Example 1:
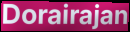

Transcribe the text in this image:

Dorairajan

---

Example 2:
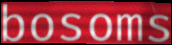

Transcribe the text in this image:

bosoms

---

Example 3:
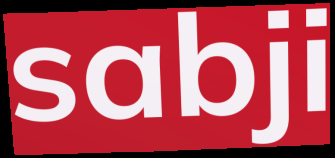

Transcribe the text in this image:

sabji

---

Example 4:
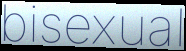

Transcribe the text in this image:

bisexual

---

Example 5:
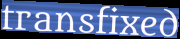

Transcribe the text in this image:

transfixed